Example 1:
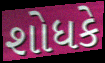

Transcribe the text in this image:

શોધકે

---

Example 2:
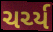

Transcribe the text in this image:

ચર્ચ્ય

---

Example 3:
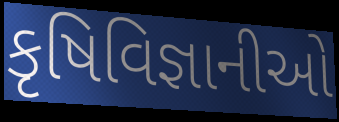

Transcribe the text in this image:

કૃષિવિજ્ઞાનીઓ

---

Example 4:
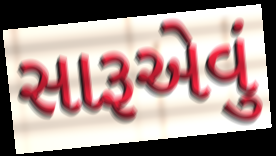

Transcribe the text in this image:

સારૂએવું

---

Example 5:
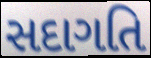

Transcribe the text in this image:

સદાગતિ